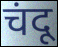
चंदू